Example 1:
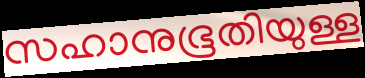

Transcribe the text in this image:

സഹാനുഭൂതിയുള്ള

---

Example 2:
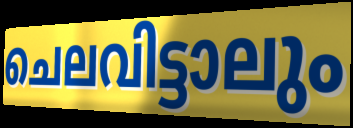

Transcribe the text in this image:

ചെലവിട്ടാലും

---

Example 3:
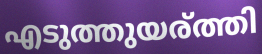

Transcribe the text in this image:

എടുത്തുയര്ത്തി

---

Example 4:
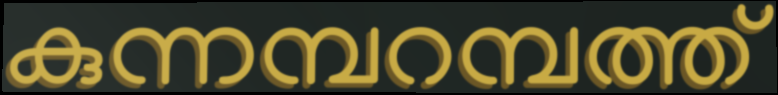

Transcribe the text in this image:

കുന്നമ്പറമ്പത്ത്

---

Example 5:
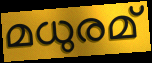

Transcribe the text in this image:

മധുരമ്